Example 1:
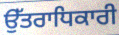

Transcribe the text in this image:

ਉੱਤਰਾਧਿਕਾਰੀ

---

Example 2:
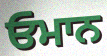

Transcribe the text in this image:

ਓਮਾਨ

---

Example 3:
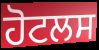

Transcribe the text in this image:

ਹੋਟਲਸ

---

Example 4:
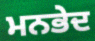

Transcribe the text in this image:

ਮਨਭੇਦ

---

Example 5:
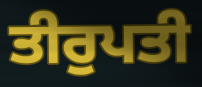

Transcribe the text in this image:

ਤੀਰੁਪਤੀ